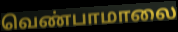
வெண்பாமாலை